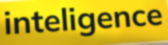
inteligence